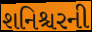
શનિશ્ચરની